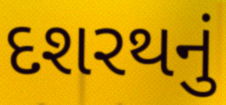
દશરથનું